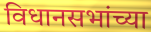
विधानसभांच्या